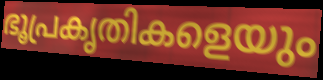
ഭൂപ്രകൃതികളെയും